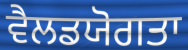
ਵੈਲਡਯੋਗਤਾ